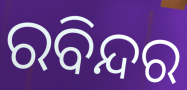
ରବିନ୍ଦର